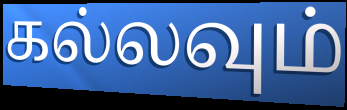
கல்லவும்